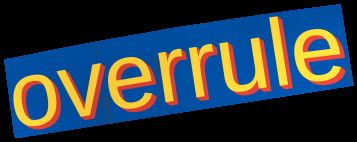
overrule